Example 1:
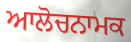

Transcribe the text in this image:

ਆਲੋਚਨਾਮਕ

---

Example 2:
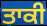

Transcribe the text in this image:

ਤਾਕੀ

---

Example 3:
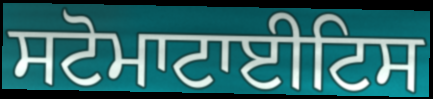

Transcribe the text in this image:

ਸਟੋਮਾਟਾਈਟਿਸ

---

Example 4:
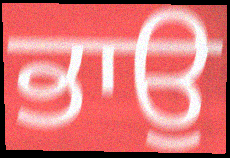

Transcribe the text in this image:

ਭਾਉ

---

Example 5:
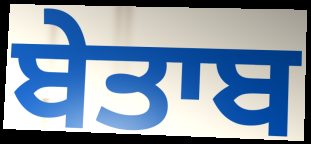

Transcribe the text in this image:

ਬੇਤਾਬ